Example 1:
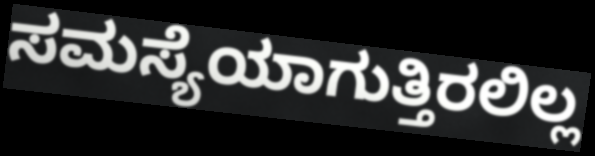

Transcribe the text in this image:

ಸಮಸ್ಯೆಯಾಗುತ್ತಿರಲಿಲ್ಲ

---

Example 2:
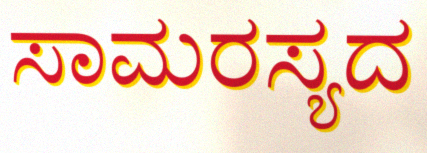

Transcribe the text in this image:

ಸಾಮರಸ್ಯದ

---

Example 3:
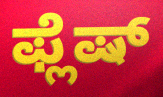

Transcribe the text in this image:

ಫ್ಲೆಷ್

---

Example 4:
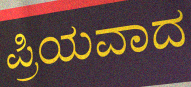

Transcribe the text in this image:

ಪ್ರಿಯವಾದ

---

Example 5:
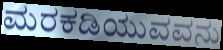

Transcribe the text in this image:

ಮರಕಡಿಯುವವನು